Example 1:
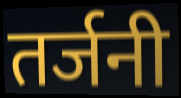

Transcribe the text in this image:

तर्जनी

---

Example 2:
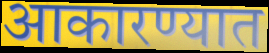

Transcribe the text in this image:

आकारण्यात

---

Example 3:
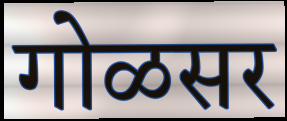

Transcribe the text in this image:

गोळसर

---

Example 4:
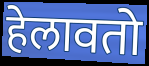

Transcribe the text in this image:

हेलावतो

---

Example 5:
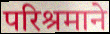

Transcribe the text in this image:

परिश्रमाने